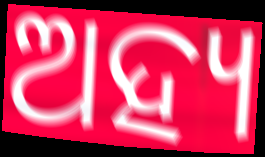
ଅହ୍ୟ